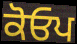
ਕੋਓਪ